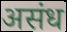
असंध